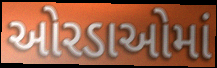
ઓરડાઓમાં